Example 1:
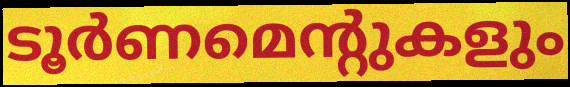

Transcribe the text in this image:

ടൂർണമെന്റുകളും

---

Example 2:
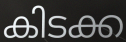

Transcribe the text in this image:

കിടക്ക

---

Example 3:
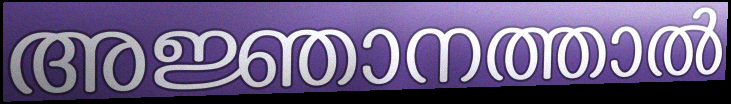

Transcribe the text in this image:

അജ്ഞാനത്താൽ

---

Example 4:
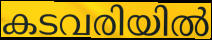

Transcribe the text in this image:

കടവരിയിൽ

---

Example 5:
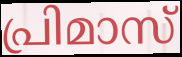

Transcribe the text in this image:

പ്രിമാസ്